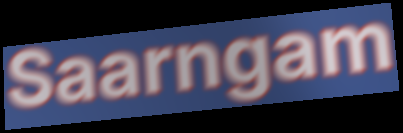
Saarngam